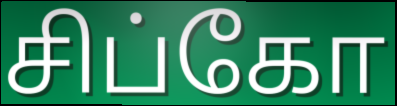
சிப்கோ